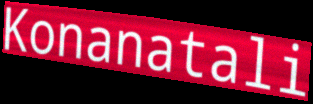
Konanatali